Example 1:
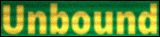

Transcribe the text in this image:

Unbound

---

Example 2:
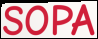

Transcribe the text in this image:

SOPA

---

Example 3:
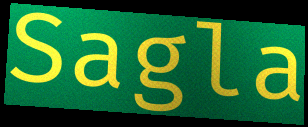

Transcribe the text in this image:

Sagla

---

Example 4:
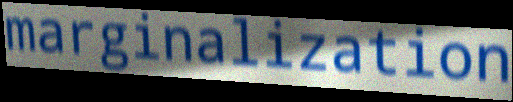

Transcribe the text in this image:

marginalization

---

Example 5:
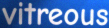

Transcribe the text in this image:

vitreous